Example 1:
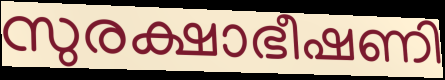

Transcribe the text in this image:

സുരക്ഷാഭീഷണി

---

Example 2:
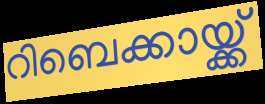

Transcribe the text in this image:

റിബെക്കായ്ക്ക്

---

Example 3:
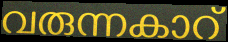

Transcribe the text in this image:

വരുന്നകാറ്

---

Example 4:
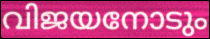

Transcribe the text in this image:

വിജയനോടും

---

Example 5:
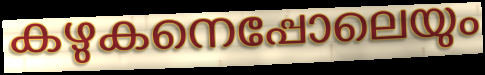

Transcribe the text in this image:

കഴുകനെപ്പോലെയും